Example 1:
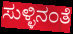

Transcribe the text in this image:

ಸುಳ್ಳಿನಂತೆ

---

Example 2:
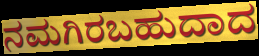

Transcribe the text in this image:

ನಮಗಿರಬಹುದಾದ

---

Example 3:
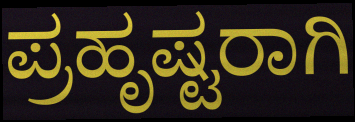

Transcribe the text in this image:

ಪ್ರಹೃಷ್ಟರಾಗಿ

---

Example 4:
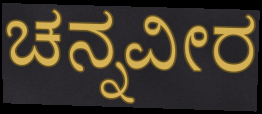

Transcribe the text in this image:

ಚನ್ನವೀರ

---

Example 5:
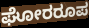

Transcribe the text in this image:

ಘೋರರೂಪ